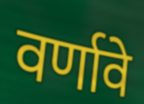
वर्णावे